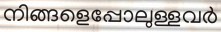
നിങ്ങളെപ്പോലുള്ളവർ